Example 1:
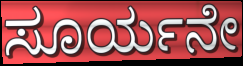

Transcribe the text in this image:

ಸೂರ್ಯನೇ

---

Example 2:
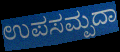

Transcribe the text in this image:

ಉಪಸಮ್ಪದಾ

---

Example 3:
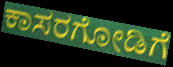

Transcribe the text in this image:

ಕಾಸರಗೋಡಿಗೆ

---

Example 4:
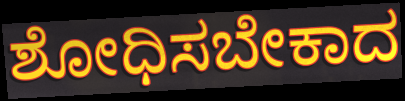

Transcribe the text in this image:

ಶೋಧಿಸಬೇಕಾದ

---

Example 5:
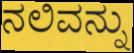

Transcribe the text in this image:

ನಲಿವನ್ನು